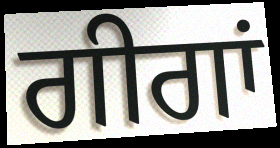
ਗੀਗਾਂ